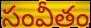
సంవీతం